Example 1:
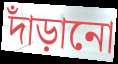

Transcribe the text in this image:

দাঁড়ানো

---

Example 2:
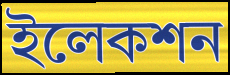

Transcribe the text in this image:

ইলেকশন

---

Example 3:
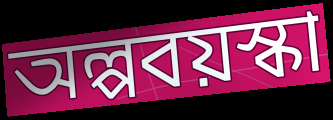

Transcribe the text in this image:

অল্পবয়স্কা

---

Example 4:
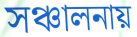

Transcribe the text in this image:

সঞ্চালনায়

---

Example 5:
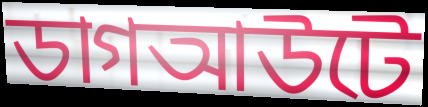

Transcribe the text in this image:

ডাগআউটে